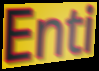
Enti